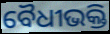
ବୈଧୀଭକ୍ତି